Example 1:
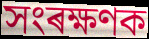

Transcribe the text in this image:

সংৰক্ষণক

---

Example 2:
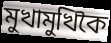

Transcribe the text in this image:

মুখামুখিকৈ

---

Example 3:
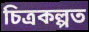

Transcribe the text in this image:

চিত্ৰকল্পত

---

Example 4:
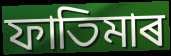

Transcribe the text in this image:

ফাতিমাৰ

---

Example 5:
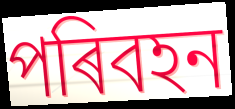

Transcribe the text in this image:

পৰিবহন